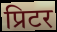
प्रिटर